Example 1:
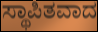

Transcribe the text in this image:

ಸ್ಥಾಪಿತವಾದ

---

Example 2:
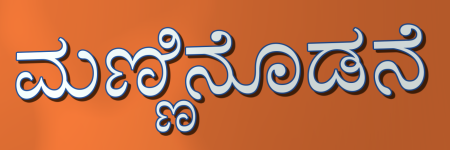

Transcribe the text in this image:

ಮಣ್ಣಿನೊಡನೆ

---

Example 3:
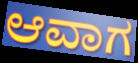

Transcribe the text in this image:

ಆವಾಗ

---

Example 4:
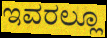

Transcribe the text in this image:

ಇವರಲ್ಲೂ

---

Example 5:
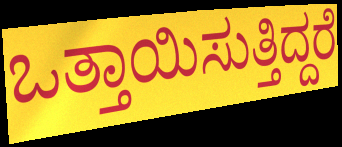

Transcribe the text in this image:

ಒತ್ತಾಯಿಸುತ್ತಿದ್ದರೆ